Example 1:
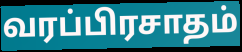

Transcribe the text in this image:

வரப்பிரசாதம்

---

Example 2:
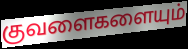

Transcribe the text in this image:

குவளைகளையும்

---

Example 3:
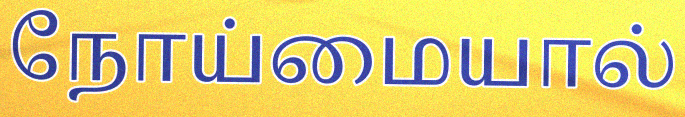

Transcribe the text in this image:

நோய்மையால்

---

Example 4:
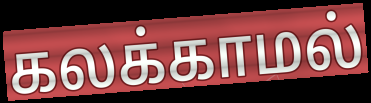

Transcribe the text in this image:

கலக்காமல்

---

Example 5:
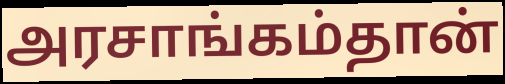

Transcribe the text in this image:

அரசாங்கம்தான்